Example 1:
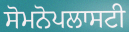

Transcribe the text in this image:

ਸੋਮਨੋਪਲਾਸਟੀ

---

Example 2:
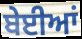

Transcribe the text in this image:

ਬੇਈਆਂ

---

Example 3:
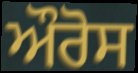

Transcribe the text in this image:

ਔਰੋਸ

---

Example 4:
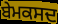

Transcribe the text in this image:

ਬੇਮਕਸਦ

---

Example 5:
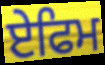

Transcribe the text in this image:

ਏਫਿਮ